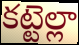
కట్టెల్లా